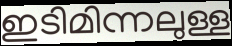
ഇടിമിന്നലുള്ള